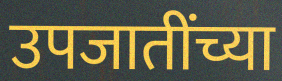
उपजातींच्या